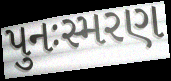
પુનઃસ્મરણ